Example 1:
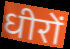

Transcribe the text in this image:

धीरों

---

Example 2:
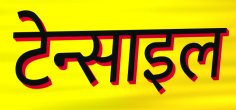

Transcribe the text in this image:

टेन्साइल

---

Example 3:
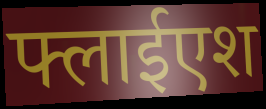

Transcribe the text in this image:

फ्लाईएश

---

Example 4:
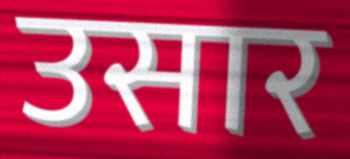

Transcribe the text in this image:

उसार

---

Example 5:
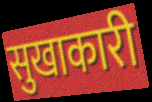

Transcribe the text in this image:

सुखाकारी